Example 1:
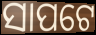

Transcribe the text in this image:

ସାପଟେ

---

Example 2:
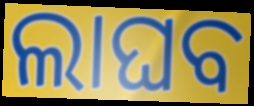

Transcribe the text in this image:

ଲାଘବ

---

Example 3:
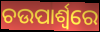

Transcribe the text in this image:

ଚଉପାର୍ଶ୍ୱରେ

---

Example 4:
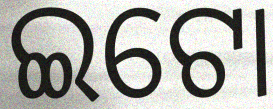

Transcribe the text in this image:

ଇଟୋ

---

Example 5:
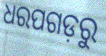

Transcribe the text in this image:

ଧରପଗଡ଼ରୁ